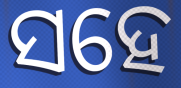
ସହେ